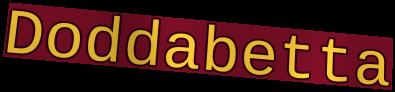
Doddabetta